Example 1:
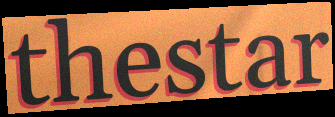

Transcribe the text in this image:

thestar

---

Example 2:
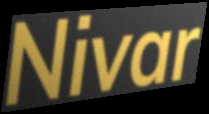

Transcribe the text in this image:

Nivar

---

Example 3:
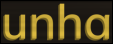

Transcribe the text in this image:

unha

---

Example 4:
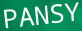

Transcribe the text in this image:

PANSY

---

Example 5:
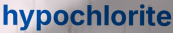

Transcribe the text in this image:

hypochlorite